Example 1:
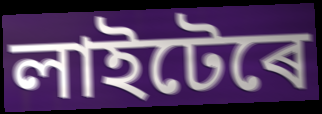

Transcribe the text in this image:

লাইটেৰে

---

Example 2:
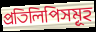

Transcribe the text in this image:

প্ৰতিলিপিসমূহ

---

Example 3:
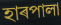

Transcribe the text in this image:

হাৰপালা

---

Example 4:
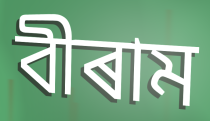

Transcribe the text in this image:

বীৰাম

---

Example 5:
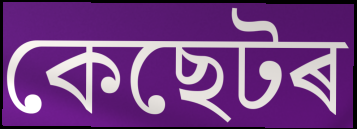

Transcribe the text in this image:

কেছেটৰ